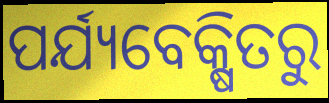
ପର୍ଯ୍ୟବେକ୍ଷିତରୁ